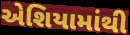
એશિયામાંથી